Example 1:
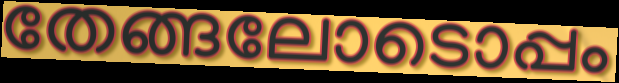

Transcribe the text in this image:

തേങ്ങലോടൊപ്പം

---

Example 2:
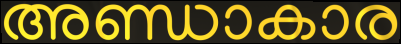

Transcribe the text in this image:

അണ്ഡാകാര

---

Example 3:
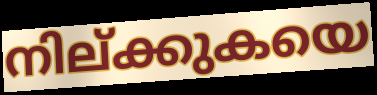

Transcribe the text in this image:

നില്ക്കുകയെ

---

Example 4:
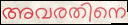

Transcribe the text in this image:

അവരതിനെ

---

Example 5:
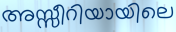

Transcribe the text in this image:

അസ്സീറിയായിലെ